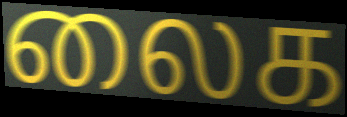
லைக